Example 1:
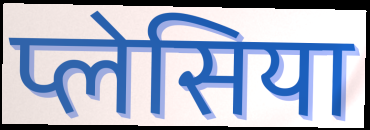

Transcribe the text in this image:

प्लेसिया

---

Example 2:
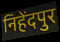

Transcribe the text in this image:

निहेंदपुर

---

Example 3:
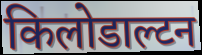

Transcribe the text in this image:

किलोडाल्टन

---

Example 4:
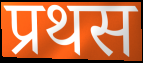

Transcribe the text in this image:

प्रथस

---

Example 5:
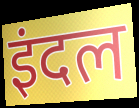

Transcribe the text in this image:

इंदल